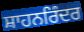
ਸ਼ਾਹਨਰਿੰਦਰ